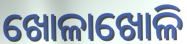
ଖୋଳାଖୋଳି